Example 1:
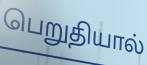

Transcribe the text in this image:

பெறுதியால்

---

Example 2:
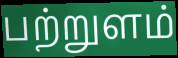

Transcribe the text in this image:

பற்றுளம்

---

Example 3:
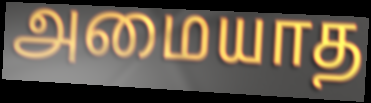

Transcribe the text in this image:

அமையாத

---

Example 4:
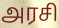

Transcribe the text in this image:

அரசி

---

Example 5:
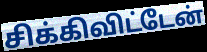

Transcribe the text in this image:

சிக்கிவிட்டேன்